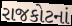
રાજકોટનાં